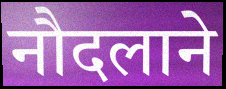
नौदलाने